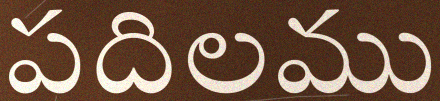
పదిలము